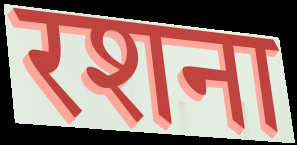
रशना